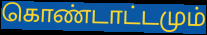
கொண்டாட்டமும்